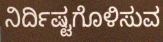
ನಿರ್ದಿಷ್ಟಗೊಳಿಸುವ